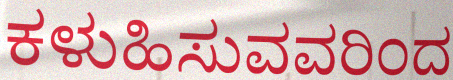
ಕಳುಹಿಸುವವರಿಂದ